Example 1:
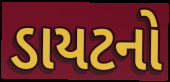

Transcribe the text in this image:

ડાયટનો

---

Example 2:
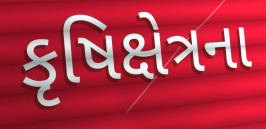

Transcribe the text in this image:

કૃષિક્ષેત્રના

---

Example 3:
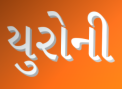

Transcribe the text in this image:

યુરોની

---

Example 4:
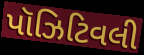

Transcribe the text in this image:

પૉઝિટિવલી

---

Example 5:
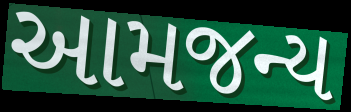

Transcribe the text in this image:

આમજન્ય